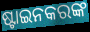
ଷ୍ଟାଇନକରଙ୍କ